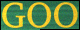
GOO